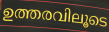
ഉത്തരവിലൂടെ